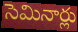
సెమినార్లు